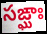
సఙ్ఘాః